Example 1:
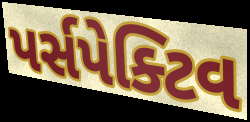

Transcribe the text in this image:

પર્સપેક્ટિવ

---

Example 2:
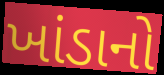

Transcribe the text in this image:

ખાંડાનો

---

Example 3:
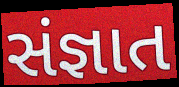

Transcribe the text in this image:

સંજ્ઞાત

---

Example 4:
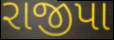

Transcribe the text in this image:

રાજીપા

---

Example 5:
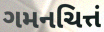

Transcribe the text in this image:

ગમનચિત્તં